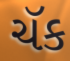
ચૅક